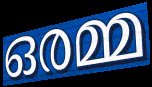
ഒരമ്മ